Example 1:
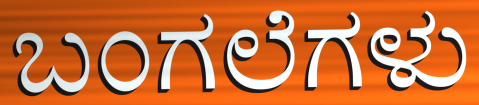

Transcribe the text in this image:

ಬಂಗಲೆಗಳು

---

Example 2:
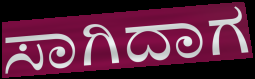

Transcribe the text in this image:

ಸಾಗಿದಾಗ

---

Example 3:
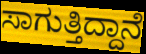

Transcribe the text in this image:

ಸಾಗುತ್ತಿದ್ದಾನೆ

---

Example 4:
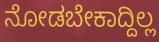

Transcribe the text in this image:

ನೋಡಬೇಕಾದ್ದಿಲ್ಲ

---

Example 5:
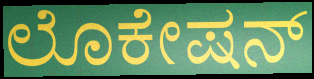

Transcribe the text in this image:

ಲೊಕೇಷನ್